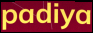
padiya